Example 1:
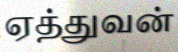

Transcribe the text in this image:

ஏத்துவன்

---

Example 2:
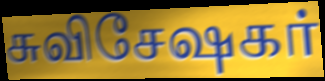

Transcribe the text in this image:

சுவிசேஷகர்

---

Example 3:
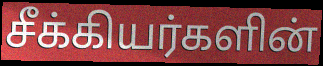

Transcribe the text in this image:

சீக்கியர்களின்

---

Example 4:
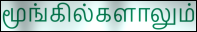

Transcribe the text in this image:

மூங்கில்களாலும்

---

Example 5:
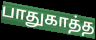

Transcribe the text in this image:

பாதுகாத்த